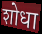
शोधा